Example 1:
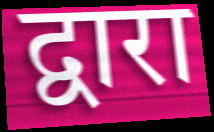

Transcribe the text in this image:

द्वारा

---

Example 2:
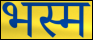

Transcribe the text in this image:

भस्म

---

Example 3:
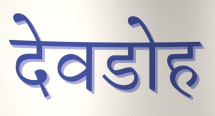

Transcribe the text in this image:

देवडोह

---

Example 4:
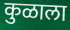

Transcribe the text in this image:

कुळाला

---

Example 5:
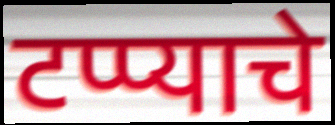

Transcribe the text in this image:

टप्प्याचे